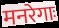
मनरेगाः